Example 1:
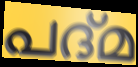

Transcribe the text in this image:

പദ്മ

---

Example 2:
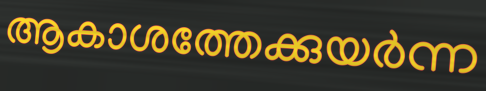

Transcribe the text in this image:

ആകാശത്തേക്കുയർന്ന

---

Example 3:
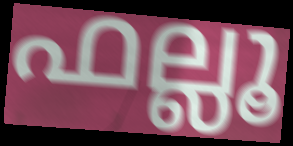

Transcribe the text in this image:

ഫല്ലൂ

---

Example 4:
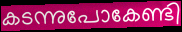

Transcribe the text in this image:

കടന്നുപോകേണ്ടി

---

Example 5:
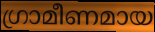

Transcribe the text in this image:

ഗ്രാമീണമായ